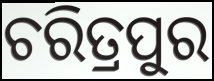
ଚରିତ୍ରପୁର